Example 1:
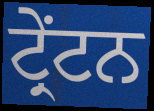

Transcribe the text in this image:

ਟ੍ਰੇਂਟਨ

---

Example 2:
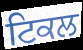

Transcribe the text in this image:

ਟਿਕਲ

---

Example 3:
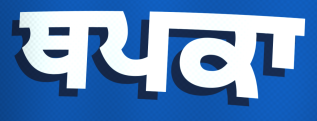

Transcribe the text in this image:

ਥਪਕਾ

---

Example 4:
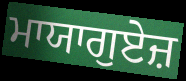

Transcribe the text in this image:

ਮਾਯਾਗੁਏਜ਼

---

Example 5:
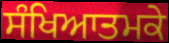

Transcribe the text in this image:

ਸੰਖਿਆਤਮਕੇ